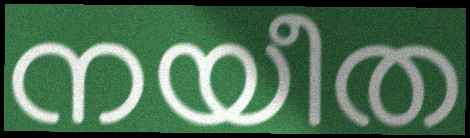
നയീത